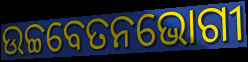
ଉଚ୍ଚବେତନଭୋଗୀ